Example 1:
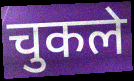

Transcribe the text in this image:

चुकले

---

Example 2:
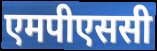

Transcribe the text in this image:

एमपीएससी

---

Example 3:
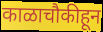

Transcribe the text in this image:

काळाचौकीहून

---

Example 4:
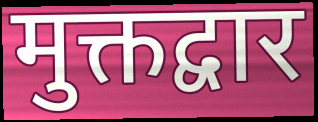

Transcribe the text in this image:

मुक्तद्वार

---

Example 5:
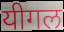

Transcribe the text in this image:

यीगल